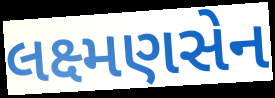
લક્ષ્મણસેન